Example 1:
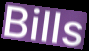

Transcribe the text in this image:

Bills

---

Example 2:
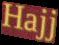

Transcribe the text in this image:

Hajj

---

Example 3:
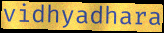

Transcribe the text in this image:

vidhyadhara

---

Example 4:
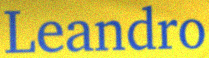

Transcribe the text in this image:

Leandro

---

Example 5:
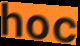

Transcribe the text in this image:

hoc